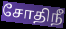
சோதிநீ